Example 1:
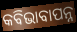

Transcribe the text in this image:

କବିଭାବାପନ୍ନ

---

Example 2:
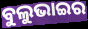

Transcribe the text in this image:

ବୁଲୁଭାଇର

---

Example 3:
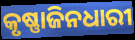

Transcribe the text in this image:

କୃଷ୍ଣାଜିନଧାରୀ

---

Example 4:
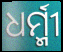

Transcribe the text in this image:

ଧର୍ମ୍ମୀ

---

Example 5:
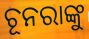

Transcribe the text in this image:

ଚୂନରାଙ୍କୁ